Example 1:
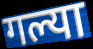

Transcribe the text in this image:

गल्या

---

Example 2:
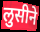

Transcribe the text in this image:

लुसीने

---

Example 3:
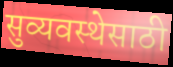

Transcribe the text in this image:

सुव्यवस्थेसाठी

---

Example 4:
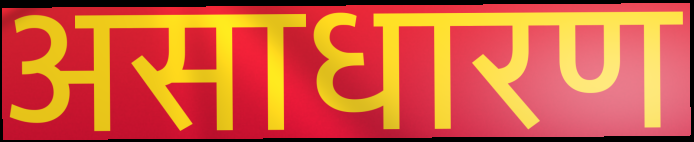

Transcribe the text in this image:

असाधारण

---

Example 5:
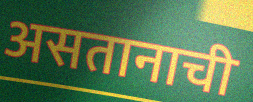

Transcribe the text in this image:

असतानाची